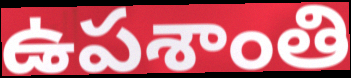
ఉపశాంతి